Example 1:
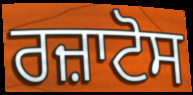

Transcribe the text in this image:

ਰਜ਼ਾਟੋਸ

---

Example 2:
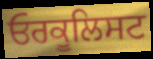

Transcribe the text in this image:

ਓਰਕੂਲਿਸਟ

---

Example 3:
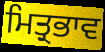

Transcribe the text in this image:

ਮਿਤ੍ਰਭਾਵ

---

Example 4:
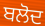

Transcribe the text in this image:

ਬਲੋਦ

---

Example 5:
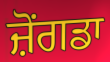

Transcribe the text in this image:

ਜ਼ੋਂਗਡਾ